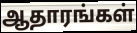
ஆதாரங்கள்